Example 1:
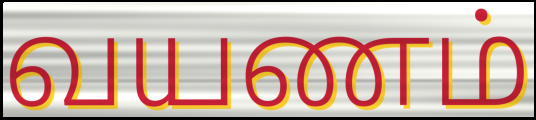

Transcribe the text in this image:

வயணம்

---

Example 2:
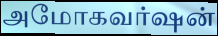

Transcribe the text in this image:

அமோகவர்ஷன்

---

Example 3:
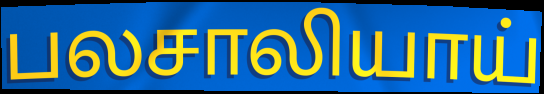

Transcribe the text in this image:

பலசாலியாய்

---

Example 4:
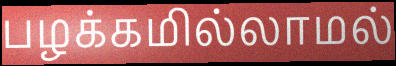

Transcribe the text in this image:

பழக்கமில்லாமல்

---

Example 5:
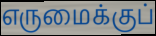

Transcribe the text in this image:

எருமைக்குப்